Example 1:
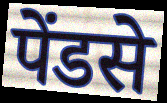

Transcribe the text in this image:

पेंडसे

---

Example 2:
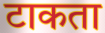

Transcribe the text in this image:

टाकता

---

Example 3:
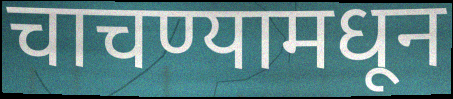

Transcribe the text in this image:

चाचण्यामधून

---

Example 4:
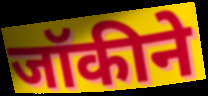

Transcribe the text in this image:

जॉकीने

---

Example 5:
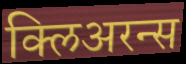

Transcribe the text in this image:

क्लिअरन्स